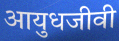
आयुधजीवी